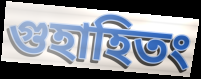
গুহাহিতং